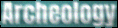
Archeology